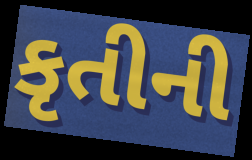
કૃતીની